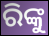
ରିଙ୍କୁ